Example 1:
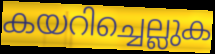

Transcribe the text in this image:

കയറിച്ചെല്ലുക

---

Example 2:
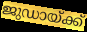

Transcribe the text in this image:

ജുഡായ്ക്ക്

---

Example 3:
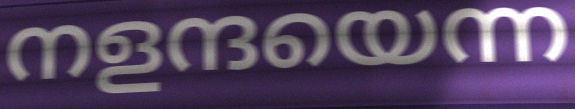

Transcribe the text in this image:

നളന്ദയെന്ന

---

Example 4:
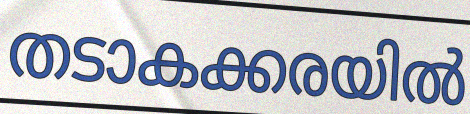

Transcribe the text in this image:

തടാകക്കരയിൽ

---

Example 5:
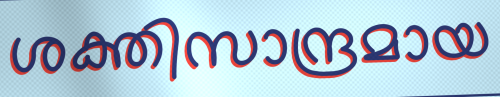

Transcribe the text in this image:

ശക്തിസാന്ദ്രമായ